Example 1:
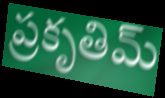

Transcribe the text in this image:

ప్రకృతిమ్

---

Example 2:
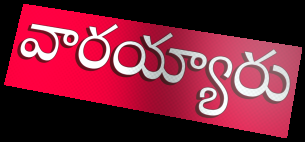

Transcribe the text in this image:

వారయ్యారు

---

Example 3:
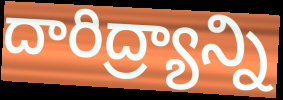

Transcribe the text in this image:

దారిద్ర్యాన్ని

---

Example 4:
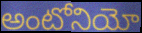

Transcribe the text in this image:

అంటోనియో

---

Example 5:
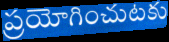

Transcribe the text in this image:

ప్రయోగించుటకు